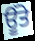
ਊੱਤੇ